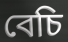
বেচি